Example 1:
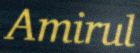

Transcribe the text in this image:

Amirul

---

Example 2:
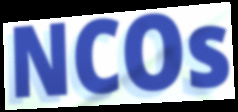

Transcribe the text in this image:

NCOs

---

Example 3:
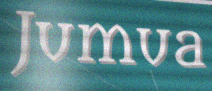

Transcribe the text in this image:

Jumua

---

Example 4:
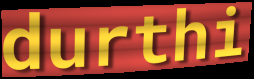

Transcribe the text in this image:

durthi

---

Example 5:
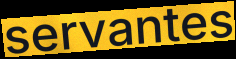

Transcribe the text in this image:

servantes